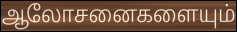
ஆலோசனைகளையும்